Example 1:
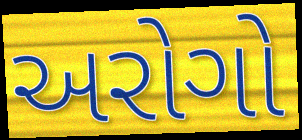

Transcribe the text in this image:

અરોગો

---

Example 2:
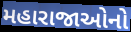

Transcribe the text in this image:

મહારાજાઓનો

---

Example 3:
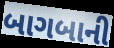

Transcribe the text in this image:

બાગબાની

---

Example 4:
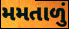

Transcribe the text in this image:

મમતાળું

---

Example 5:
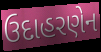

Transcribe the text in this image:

ઉદાહરણેન